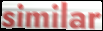
similar